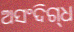
ଅସଂଦିଗ୍‌ଧ